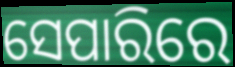
ସେପାରିରେ